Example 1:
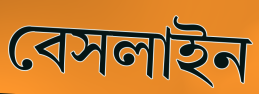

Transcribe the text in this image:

বেসলাইন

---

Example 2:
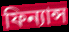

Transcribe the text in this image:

ফিন্যান্স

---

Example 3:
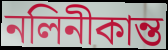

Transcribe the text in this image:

নলিনীকান্ত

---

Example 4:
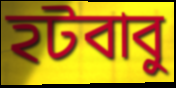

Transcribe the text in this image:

হটবাবু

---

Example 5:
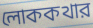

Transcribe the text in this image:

লোককথার